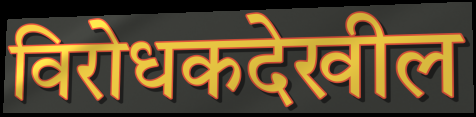
विरोधकदेखील